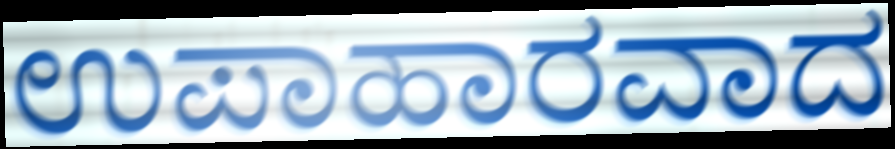
ಉಪಾಹಾರವಾದ